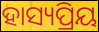
ହାସ୍ୟପ୍ରିୟ